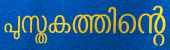
പുസ്തകത്തിന്റെ